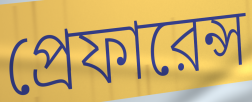
প্রেফারেন্স